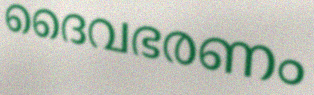
ദൈവഭരണം